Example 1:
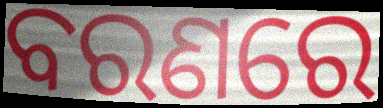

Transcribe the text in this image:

ବରଣରେ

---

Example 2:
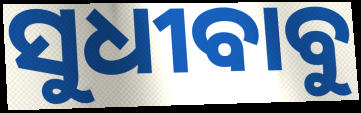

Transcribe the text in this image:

ସୁଧୀବାବୁ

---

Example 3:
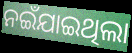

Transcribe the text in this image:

ନଇଁଯାଇଥିଲା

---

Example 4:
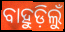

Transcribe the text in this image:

ବାହୁଡ଼ିଲୁଁ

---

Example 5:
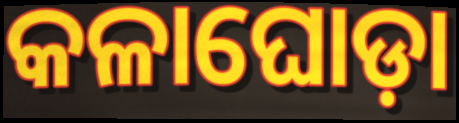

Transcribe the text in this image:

କଳାଘୋଡ଼ା